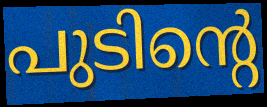
പുടിന്റെ